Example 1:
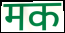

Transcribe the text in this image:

मक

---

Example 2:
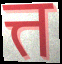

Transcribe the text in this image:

त्त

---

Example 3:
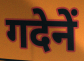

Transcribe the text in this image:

गदेनें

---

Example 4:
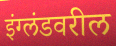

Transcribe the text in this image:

इंग्लंडवरील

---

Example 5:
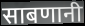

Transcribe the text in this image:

साबणानी